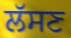
ਲੱਸਣ